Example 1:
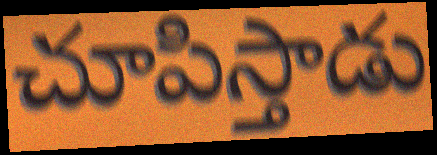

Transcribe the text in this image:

చూపిస్తాడు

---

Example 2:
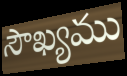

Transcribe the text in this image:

సౌఖ్యము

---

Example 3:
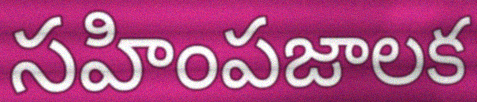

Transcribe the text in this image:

సహింపజాలక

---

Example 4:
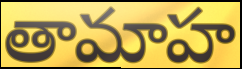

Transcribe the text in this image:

తామాహ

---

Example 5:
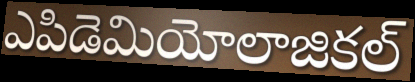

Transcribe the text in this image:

ఎపిడెమియోలాజికల్